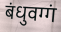
बंधुवग्गं